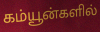
கம்யூன்களில்